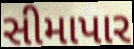
સીમાપાર